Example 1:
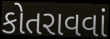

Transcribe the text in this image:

કોતરાવવાં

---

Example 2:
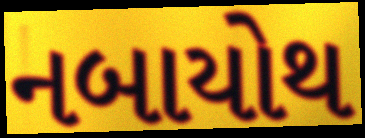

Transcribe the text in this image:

નબાયોથ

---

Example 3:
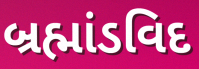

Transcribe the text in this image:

બ્રહ્માંડવિદ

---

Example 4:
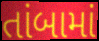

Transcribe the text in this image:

તાંબામાં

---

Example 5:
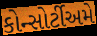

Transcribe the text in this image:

કોન્સોર્ટીઅમે